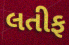
લતીફ